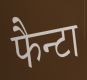
फैन्टा